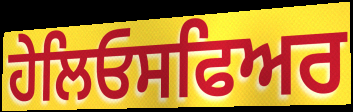
ਹੇਲਿਓਸਫਿਅਰ